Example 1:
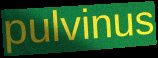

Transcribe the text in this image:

pulvinus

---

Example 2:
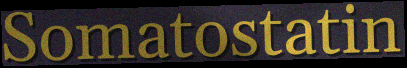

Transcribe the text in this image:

Somatostatin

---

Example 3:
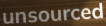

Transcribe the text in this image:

unsourced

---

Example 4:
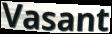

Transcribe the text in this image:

Vasant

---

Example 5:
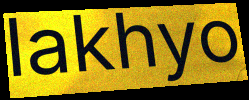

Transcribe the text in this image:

lakhyo